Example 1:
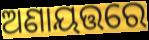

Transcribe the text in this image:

ଅଣାୟତ୍ତରେ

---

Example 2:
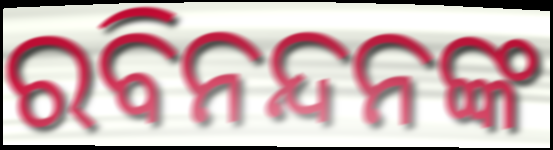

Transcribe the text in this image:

ରବିନନ୍ଦନଙ୍କ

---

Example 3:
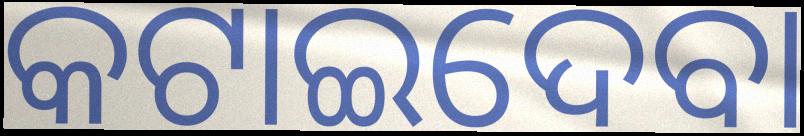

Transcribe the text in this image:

କଟାଇଦେବା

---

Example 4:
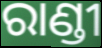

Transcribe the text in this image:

ରାଣ୍ଡୀ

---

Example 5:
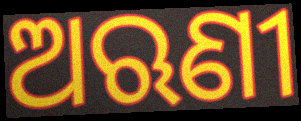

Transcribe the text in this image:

ଅଋଣୀ